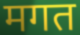
मगत